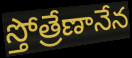
స్తోత్రేణానేన